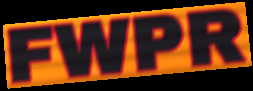
FWPR